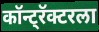
कॉन्ट्रॅक्टरला